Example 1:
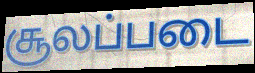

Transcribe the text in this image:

சூலப்படை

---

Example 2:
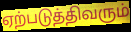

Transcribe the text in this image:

ஏற்படுத்திவரும்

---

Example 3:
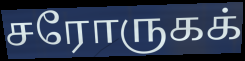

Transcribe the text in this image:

சரோருகக்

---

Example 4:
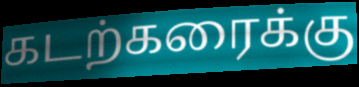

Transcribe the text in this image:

கடற்கரைக்கு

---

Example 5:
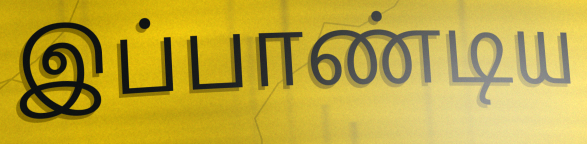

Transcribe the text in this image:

இப்பாண்டிய